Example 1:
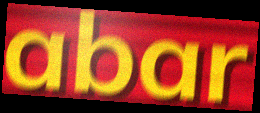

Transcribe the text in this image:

abar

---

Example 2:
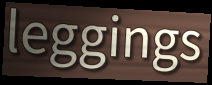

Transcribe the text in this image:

leggings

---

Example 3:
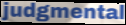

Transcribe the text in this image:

judgmental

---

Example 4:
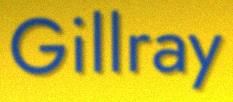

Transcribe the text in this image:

Gillray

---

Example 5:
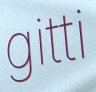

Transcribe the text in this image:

gitti